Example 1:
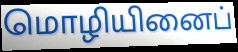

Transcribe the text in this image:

மொழியினைப்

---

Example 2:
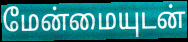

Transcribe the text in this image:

மேன்மையுடன்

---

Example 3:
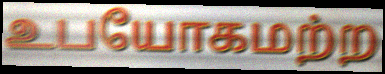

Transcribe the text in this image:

உபயோகமற்ற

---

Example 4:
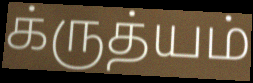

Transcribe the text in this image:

க்ருத்யம்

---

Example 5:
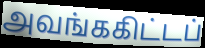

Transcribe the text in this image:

அவங்ககிட்டப்